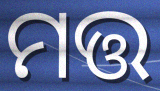
ମତ୍ତ